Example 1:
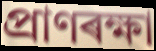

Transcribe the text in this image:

প্ৰাণৰক্ষা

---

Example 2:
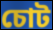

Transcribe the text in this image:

চোট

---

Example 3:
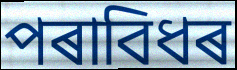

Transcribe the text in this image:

পৰাবিধৰ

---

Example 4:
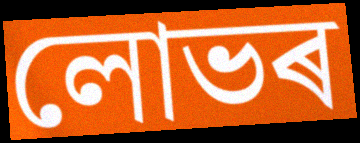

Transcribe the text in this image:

লোভৰ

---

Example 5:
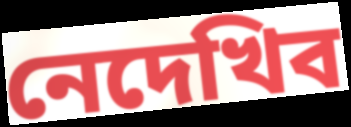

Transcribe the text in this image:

নেদেখিব